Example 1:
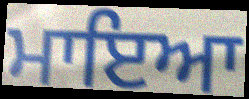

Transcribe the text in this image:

ਮਾਇਆ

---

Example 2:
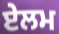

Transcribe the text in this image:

ਏਲਮ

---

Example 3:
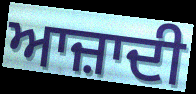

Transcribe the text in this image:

ਆਜ਼ਾਦੀ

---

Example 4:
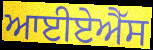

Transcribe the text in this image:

ਆਈਏਐੱਸ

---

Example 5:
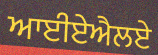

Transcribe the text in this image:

ਆਈਏਐਲਏ